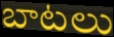
బాటలు